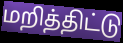
மறித்திட்டு